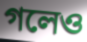
গলেও